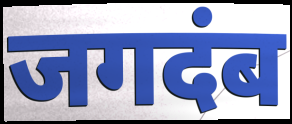
जगदंब